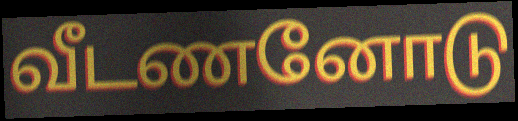
வீடணனோடு